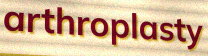
arthroplasty